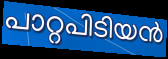
പാറ്റപിടിയൻ